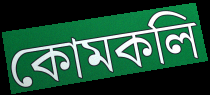
কোমকলি